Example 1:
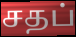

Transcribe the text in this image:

சதப்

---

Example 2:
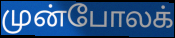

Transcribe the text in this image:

முன்போலக்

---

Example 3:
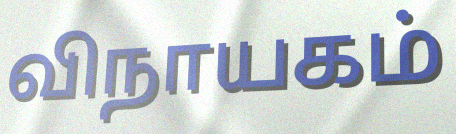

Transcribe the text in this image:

விநாயகம்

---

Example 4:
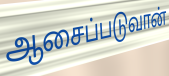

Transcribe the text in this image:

ஆசைப்படுவான்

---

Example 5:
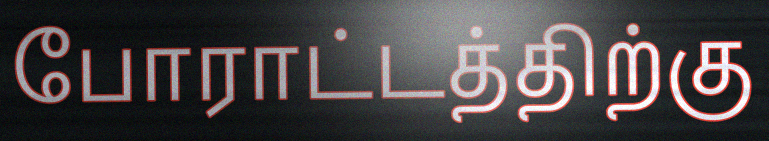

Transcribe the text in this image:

போராட்டத்திற்கு